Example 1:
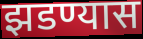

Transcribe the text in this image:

झडण्यास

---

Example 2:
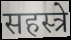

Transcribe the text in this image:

सहस्त्रे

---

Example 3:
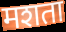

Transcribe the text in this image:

मशता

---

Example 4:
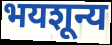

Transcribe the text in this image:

भयशून्य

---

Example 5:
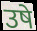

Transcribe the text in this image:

उषे